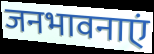
जनभावनाएं